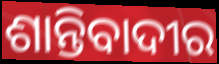
ଶାନ୍ତିବାଦୀର